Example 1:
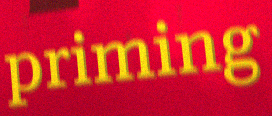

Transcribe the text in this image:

priming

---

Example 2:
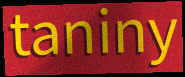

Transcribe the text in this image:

taniny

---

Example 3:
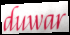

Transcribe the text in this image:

duwar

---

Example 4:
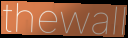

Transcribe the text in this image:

thewall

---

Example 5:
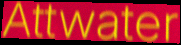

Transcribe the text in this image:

Attwater